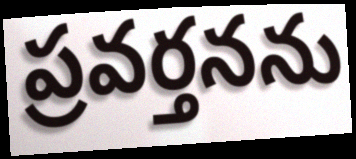
ప్రవర్తనను